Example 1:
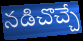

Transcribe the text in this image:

నడిచొచ్చే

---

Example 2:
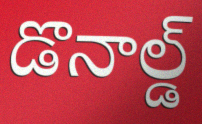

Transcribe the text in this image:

డొనాల్డ్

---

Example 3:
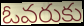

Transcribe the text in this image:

ఓవరుకు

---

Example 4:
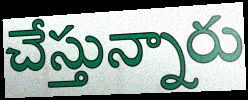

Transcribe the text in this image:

చేస్తున్నారు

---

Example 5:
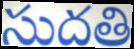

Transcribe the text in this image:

సుదతి